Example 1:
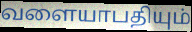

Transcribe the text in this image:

வளையாபதியும்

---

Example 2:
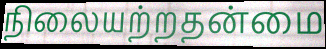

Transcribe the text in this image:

நிலையற்றதன்மை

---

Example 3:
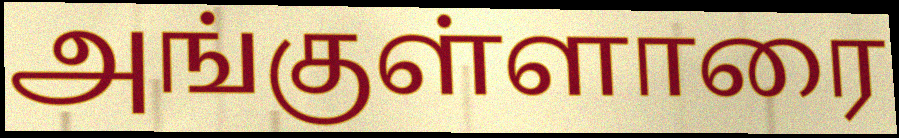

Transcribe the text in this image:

அங்குள்ளாரை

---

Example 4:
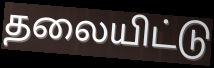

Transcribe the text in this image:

தலையிட்டு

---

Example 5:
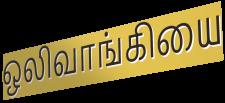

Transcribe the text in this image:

ஒலிவாங்கியை